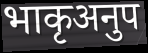
भाकृअनुप